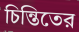
চিন্তিতের